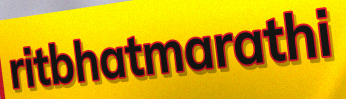
ritbhatmarathi